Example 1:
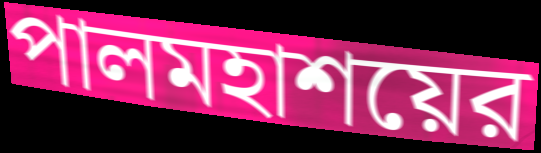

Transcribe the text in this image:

পালমহাশয়ের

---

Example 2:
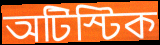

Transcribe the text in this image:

অটিস্টিক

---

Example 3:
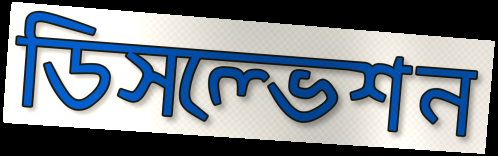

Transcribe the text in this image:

ডিসল্ভেশন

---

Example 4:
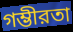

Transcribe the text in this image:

গম্ভীরতা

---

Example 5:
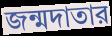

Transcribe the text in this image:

জন্মদাতার